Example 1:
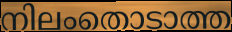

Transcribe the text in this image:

നിലംതൊടാത്ത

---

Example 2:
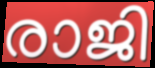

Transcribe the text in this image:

രാജി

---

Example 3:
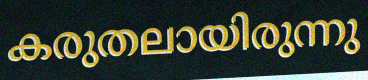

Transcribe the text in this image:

കരുതലായിരുന്നു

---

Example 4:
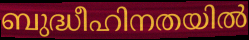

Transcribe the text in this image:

ബുദ്ധീഹിനതയിൽ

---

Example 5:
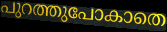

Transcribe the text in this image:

പുറത്തുപോകാതെ